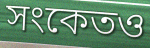
সংকেতও